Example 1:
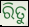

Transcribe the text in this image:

ରିତୁ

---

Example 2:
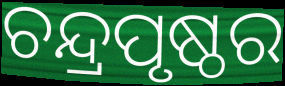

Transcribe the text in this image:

ଚନ୍ଦ୍ରପୃଷ୍ଠର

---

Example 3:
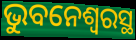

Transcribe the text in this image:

ଭୁବନେଶ୍ଵରସ୍ଥ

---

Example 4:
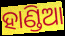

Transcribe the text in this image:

ହାଣ୍ଡିଆ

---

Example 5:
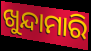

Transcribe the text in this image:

ଖୁନ୍ଦାମାରି